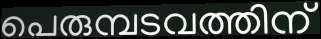
പെരുമ്പടവത്തിന്